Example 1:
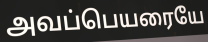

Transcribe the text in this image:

அவப்பெயரையே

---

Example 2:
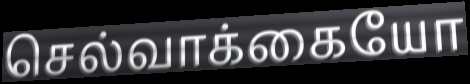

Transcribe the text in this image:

செல்வாக்கையோ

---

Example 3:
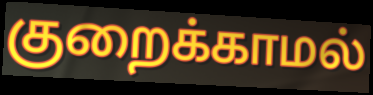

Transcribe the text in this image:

குறைக்காமல்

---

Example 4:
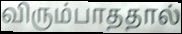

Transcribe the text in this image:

விரும்பாததால்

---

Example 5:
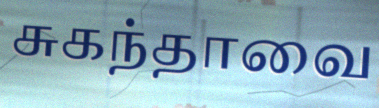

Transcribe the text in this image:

சுகந்தாவை